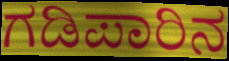
ಗಡಿಪಾರಿನ